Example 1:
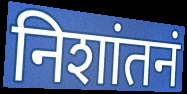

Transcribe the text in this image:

निशांतनं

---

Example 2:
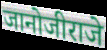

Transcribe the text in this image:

जानोजीराजे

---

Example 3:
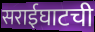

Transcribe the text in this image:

सराईघाटची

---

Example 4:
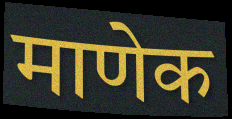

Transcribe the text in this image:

माणेक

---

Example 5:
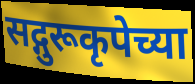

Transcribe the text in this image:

सद्गुरूकृपेच्या